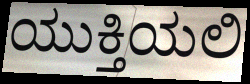
ಯುಕ್ತಿಯಲಿ